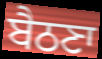
ਬੈਠਣਾ